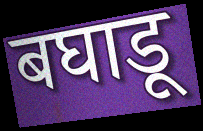
बघाडू